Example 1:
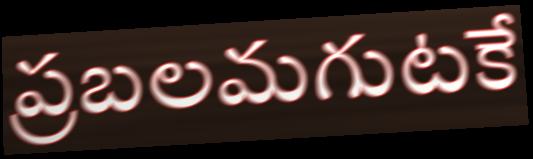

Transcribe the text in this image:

ప్రబలమగుటకే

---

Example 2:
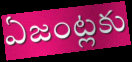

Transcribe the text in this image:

ఏజంట్లకు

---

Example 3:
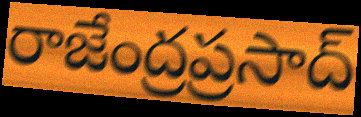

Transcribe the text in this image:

రాజేంద్రప్రసాద్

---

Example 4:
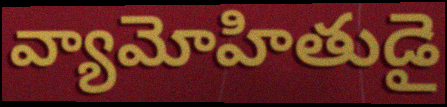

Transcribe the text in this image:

వ్యామోహితుడై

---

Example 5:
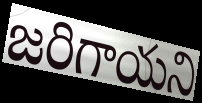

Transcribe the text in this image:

జరిగాయని